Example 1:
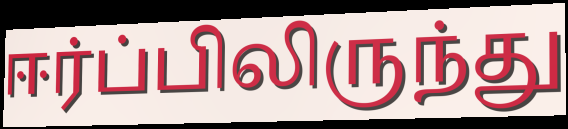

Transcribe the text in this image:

ஈர்ப்பிலிருந்து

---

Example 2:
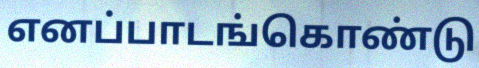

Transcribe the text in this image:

எனப்பாடங்கொண்டு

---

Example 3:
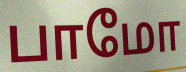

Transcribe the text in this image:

பாமோ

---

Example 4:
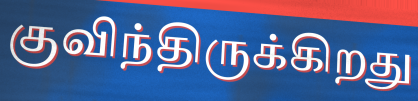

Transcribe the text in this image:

குவிந்திருக்கிறது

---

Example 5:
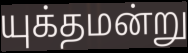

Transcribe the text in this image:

யுக்தமன்று